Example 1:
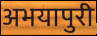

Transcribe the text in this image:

अभयापुरी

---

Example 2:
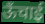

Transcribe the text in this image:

ऊँचाई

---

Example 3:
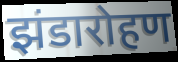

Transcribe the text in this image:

झंडारोहण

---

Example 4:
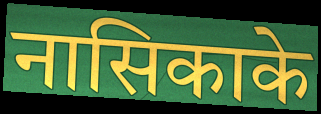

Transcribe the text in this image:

नासिकाके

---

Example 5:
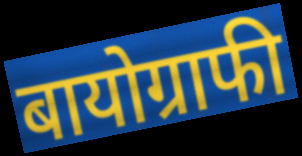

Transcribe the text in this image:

बायोग्राफी